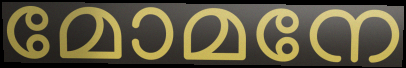
മോമനേ